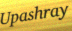
Upashray